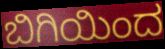
ಬಿಗಿಯಿಂದ